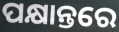
ପକ୍ଷାନ୍ତରେ